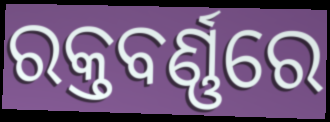
ରକ୍ତବର୍ଣ୍ଣରେ